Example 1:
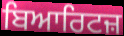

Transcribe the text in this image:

ਬਿਆਰਿਟਜ਼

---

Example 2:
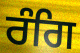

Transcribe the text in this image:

ਰੰਗਿ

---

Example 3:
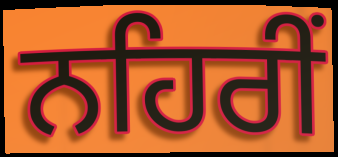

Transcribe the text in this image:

ਨਹਿਰੀਂ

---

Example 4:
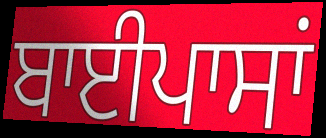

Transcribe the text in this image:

ਬਾਈਪਾਸਾਂ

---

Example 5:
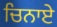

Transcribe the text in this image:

ਚਿਨਾਏ